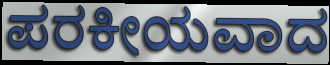
ಪರಕೀಯವಾದ